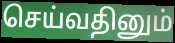
செய்வதினும்